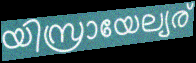
യിസ്രായേല്യര്